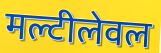
मल्टीलेवल